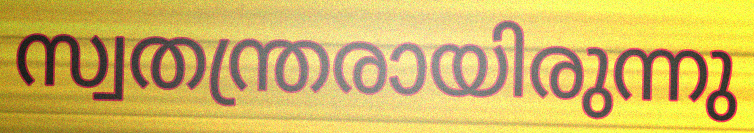
സ്വതന്ത്രരായിരുന്നു